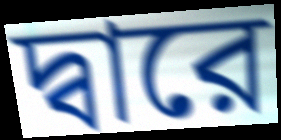
দ্বারে